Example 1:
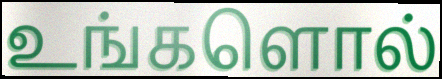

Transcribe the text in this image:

உங்களொல்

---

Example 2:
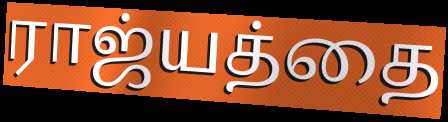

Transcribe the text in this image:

ராஜ்யத்தை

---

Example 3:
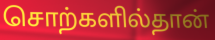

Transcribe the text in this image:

சொற்களில்தான்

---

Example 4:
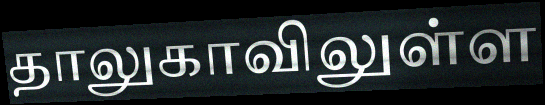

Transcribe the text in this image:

தாலுகாவிலுள்ள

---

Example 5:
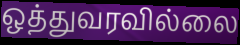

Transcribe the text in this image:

ஒத்துவரவில்லை